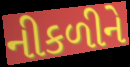
નીકળીને